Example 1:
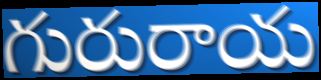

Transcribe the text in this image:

గురురాయ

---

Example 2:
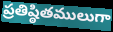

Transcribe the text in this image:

ప్రతిష్ఠితములుగా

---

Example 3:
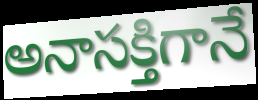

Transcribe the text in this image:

అనాసక్తిగానే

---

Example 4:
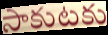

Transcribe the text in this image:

సాకుటకు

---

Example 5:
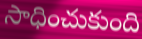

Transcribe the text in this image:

సాధించుకుంది